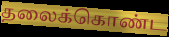
தலைக்கொண்ட